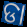
ଡା